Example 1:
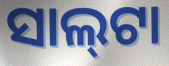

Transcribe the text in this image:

ସାଲ୍‌ଟା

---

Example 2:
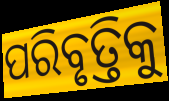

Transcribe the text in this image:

ପରିବୃତ୍ତିକୁ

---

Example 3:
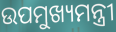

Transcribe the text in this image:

ଉପମୁଖ୍ୟମନ୍ତ୍ରୀ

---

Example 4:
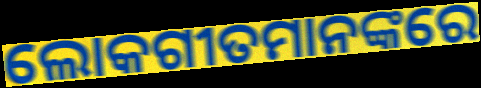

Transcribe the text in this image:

ଲୋକଗୀତମାନଙ୍କରେ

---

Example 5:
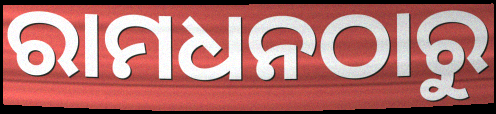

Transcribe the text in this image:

ରାମଧନଠାରୁ